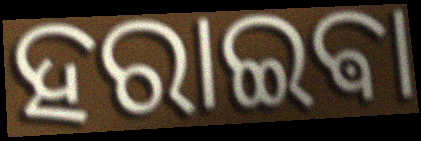
ହରାଇଵା